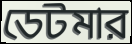
ডেটমার